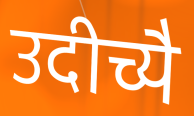
उदीच्यै